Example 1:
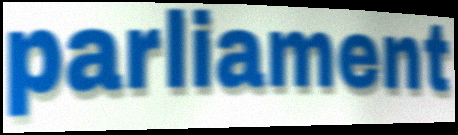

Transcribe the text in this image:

parliament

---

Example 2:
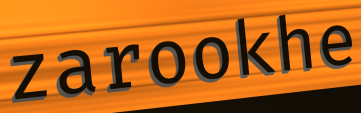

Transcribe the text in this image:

zarookhe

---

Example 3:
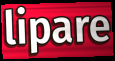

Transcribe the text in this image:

lipare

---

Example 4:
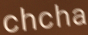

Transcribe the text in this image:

chcha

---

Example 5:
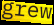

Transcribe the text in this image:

grew